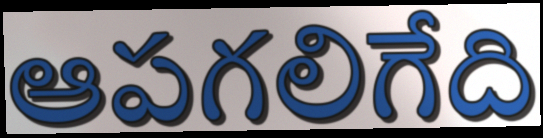
ఆపగలిగేది